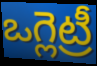
ఒగ్లెట్రీ